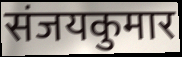
संजयकुमार